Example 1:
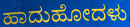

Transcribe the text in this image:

ಹಾದುಹೋದಳು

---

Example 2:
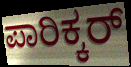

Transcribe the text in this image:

ಪಾರಿಕ್ಕರ್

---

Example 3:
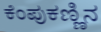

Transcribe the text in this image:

ಕೆಂಪುಕಣ್ಣಿನ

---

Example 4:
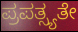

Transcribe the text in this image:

ಪ್ರಪತ್ಸ್ಯತೇ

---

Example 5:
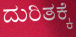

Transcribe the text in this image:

ದುರಿತಕ್ಕೆ